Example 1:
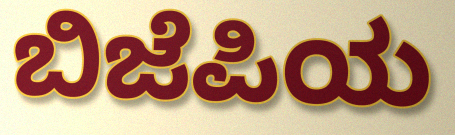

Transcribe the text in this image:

ಬಿಜೆಪಿಯ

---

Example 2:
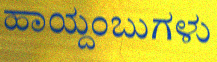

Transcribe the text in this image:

ಹಾಯ್ದಂಬುಗಳು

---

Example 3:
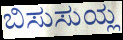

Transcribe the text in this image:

ಬಿಸುಸುಯ್ಲ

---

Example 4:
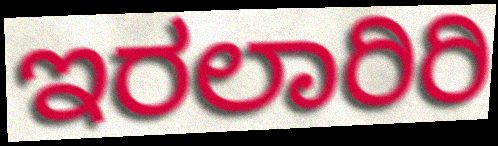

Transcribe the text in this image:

ಇರಲಾರಿರಿ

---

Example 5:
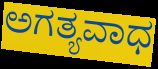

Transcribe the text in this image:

ಅಗತ್ಯವಾಧ